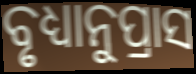
ବୃଧ୍ୟାନୁପ୍ରାସ